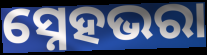
ସ୍ନେହଭରା